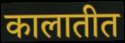
कालातीत